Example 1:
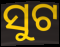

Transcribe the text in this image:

ସୁଟ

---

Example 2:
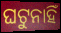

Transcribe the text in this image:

ଘଟୁନାହିଁ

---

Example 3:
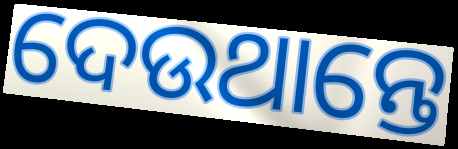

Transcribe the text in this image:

ଦେଉଥାନ୍ତେ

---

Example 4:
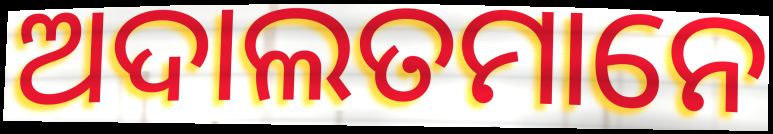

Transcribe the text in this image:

ଅଦାଲତମାନେ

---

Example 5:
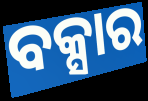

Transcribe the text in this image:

ବକ୍ସାର